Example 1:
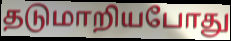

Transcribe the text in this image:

தடுமாறியபோது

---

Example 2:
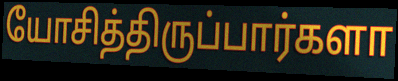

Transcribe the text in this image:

யோசித்திருப்பார்களா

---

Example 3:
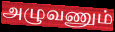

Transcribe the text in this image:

அழுவணும்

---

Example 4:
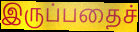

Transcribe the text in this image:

இருப்பதைச்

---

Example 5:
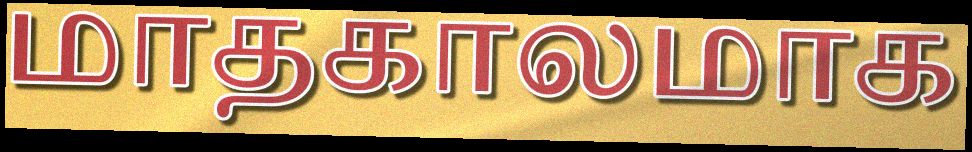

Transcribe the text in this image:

மாதகாலமாக